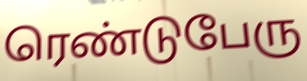
ரெண்டுபேரு